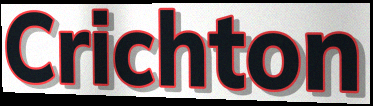
Crichton